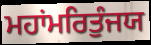
ਮਹਾਂਮਰਿਤੁੰਜਯ